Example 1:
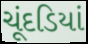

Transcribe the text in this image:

ચૂંદડિયાં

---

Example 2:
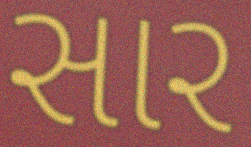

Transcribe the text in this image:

સાર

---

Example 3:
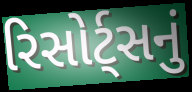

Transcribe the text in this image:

રિસોર્ટ્સનું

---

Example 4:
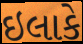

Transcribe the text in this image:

ઇલાકે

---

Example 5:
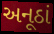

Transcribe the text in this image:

અનૂઠાં